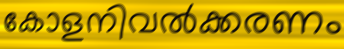
കോളനിവൽക്കരണം